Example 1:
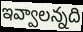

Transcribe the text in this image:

ఇవ్వాలన్నది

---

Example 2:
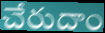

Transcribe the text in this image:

చేరుదాం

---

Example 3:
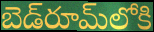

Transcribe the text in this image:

బెడ్‌రూమ్‌లోకి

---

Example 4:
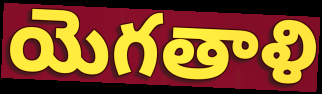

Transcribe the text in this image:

యెగతాళి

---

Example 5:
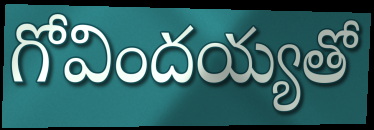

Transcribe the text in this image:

గోవిందయ్యతో